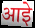
आइे